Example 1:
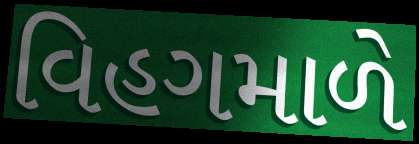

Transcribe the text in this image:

વિહગમાળે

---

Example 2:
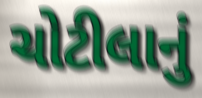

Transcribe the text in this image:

ચોટીલાનું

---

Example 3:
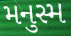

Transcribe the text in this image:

મનુસ્મ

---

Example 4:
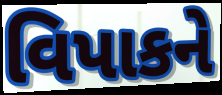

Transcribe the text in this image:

વિપાકને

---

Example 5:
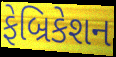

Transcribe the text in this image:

ફેબ્રિકેશન